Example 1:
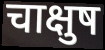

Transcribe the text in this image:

चाक्षुष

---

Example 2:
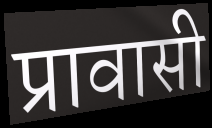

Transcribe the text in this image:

प्रावासी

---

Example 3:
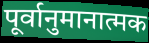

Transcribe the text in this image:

पूर्वानुमानात्मक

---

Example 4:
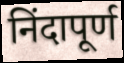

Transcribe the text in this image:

निंदापूर्ण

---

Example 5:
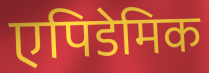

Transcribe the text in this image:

एपिडेमिक